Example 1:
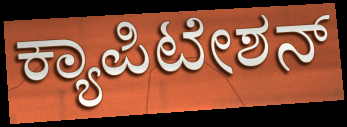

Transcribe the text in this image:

ಕ್ಯಾಪಿಟೇಶನ್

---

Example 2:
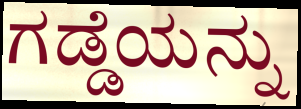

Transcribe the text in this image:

ಗಡ್ಡೆಯನ್ನು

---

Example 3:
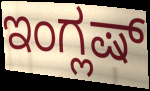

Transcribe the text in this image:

ಇಂಗ್ಲಷ್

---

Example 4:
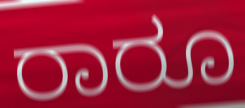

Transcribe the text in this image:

ರಾರೂ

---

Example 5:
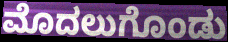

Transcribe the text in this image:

ಮೊದಲುಗೊಂಡು